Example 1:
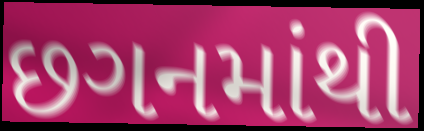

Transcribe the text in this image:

છગનમાંથી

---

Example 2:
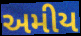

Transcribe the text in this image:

અમીય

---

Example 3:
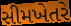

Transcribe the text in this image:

સીમખેતરે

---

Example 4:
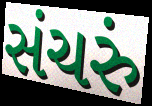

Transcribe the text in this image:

સંચરું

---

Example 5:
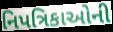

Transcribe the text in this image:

નિપત્રિકાઓની